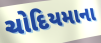
ચોદિયમાના